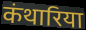
कंथारिया